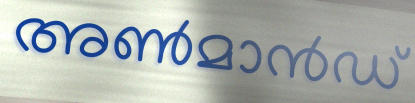
അൺമാൻഡ്